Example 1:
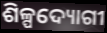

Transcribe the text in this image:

ଶିଳ୍ପଦ୍ୟୋଗୀ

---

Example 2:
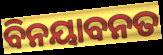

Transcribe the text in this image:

ବିନୟାବନତ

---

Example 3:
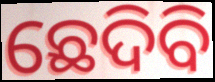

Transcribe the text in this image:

ଛେଦିବି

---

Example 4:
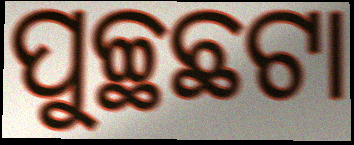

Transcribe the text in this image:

ପୁଚ୍ଛଛଟା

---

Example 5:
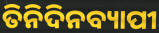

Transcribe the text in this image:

ତିନିଦିନବ୍ୟାପୀ